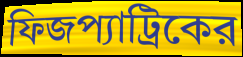
ফিজপ্যাট্রিকের